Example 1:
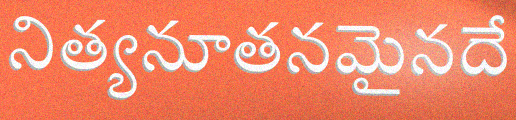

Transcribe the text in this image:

నిత్యనూతనమైనదే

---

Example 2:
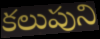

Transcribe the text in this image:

కలుపుని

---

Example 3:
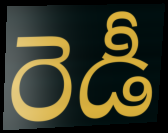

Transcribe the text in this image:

రెడీ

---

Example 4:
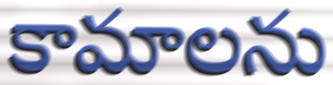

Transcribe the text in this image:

కామాలను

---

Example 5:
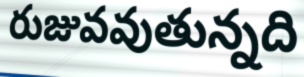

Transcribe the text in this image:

రుజువవుతున్నది